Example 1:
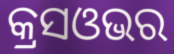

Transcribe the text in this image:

କ୍ରସଓଭର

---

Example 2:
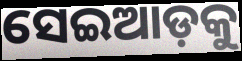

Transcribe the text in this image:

ସେଇଆଡ଼କୁ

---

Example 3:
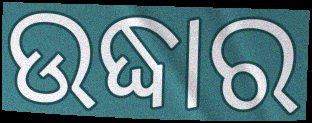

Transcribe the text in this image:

ଉଦ୍ଧାର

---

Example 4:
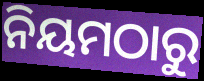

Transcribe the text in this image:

ନିୟମଠାରୁ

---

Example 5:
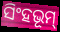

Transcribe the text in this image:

ସିଂହଭୂମ୍